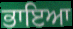
ਭਾਇਆ